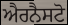
ਐਰਨੈਸਟੋ